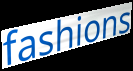
fashions